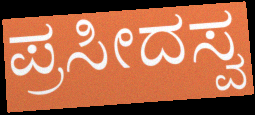
ಪ್ರಸೀದಸ್ವ